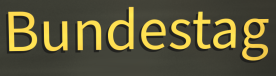
Bundestag